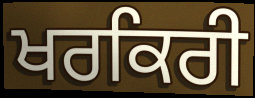
ਖਰਕਿਰੀ